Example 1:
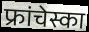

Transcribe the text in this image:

फ्रांचेस्का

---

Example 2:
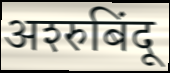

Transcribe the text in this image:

अश्रुबिंदू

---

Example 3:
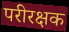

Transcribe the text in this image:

परीरक्षक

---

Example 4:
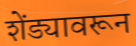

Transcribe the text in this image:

शेंड्यावरून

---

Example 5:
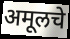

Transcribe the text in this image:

अमूलचे